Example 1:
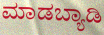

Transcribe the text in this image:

ಮಾಡಬ್ಯಾಡಿ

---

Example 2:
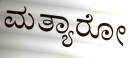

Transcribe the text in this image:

ಮತ್ಯಾರೋ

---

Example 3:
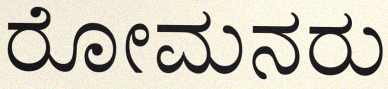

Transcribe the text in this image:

ರೋಮನರು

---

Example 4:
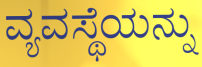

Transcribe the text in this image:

ವ್ಯವಸ್ಥೆಯನ್ನು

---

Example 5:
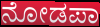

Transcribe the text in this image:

ನೋಡಪಾ